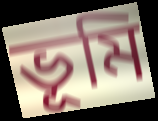
ভূমি